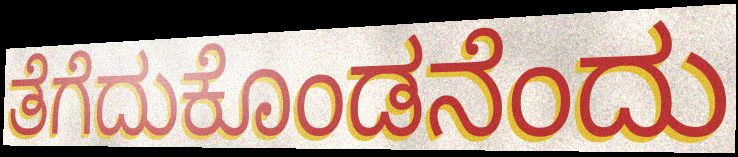
ತೆಗೆದುಕೊಂಡನೆಂದು